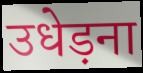
उधेड़ना